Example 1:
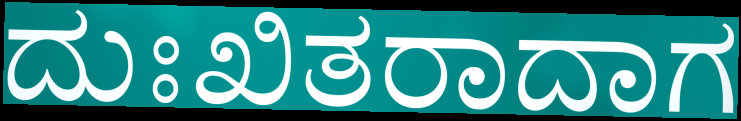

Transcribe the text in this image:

ದುಃಖಿತರಾದಾಗ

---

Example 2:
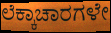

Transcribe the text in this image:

ಲೆಕ್ಕಾಚಾರಗಳೇ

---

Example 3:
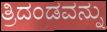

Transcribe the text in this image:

ತ್ರಿದಂಡವನ್ನು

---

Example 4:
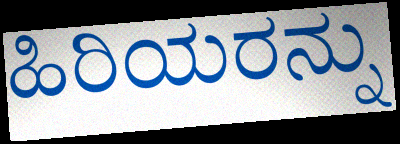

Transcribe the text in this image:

ಹಿರಿಯರನ್ನು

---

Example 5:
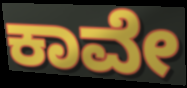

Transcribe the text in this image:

ಕಾವೇ